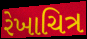
રેખાચિત્ર